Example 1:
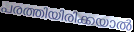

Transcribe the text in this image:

പരത്തിയിരിക്കയാൽ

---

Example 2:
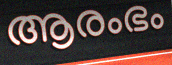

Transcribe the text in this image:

ആരംഭം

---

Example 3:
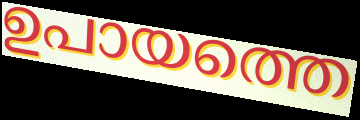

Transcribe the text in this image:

ഉപായത്തെ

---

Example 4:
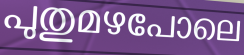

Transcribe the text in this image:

പുതുമഴപോലെ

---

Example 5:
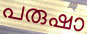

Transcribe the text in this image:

പരുഷാ